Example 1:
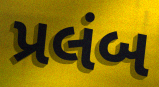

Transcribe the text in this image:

પ્રલંબ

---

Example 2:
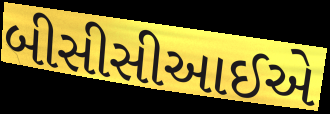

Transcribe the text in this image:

બીસીસીઆઈએ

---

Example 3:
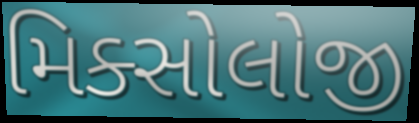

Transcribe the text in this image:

મિક્સોલોજી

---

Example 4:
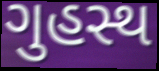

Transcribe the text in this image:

ગુહસ્થ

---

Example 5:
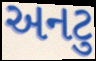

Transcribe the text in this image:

અનટુ